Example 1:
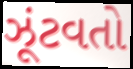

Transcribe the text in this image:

ઝૂંટવતો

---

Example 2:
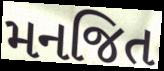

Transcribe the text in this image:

મનજિત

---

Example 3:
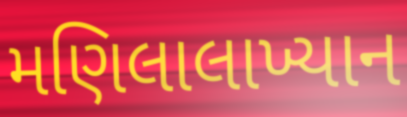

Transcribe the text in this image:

મણિલાલાખ્યાન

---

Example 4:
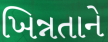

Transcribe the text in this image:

ખિન્નતાને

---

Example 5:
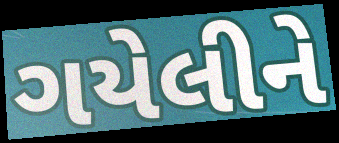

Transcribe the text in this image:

ગયેલીને